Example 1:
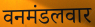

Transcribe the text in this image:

वनमंडलवार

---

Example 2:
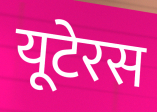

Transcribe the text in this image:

यूटेरस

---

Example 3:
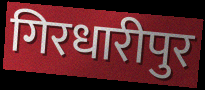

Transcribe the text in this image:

गिरधारीपुर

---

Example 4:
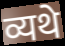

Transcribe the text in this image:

व्यथे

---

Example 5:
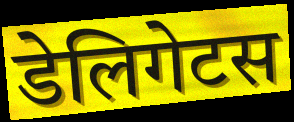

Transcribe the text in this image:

डेलिगेटस